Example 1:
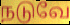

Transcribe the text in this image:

நடுவே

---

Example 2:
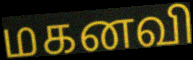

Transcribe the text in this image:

மகனவி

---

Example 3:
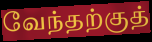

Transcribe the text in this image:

வேந்தற்குத்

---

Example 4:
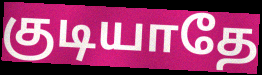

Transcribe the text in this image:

குடியாதே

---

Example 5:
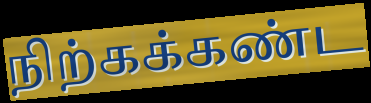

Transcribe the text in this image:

நிற்கக்கண்ட